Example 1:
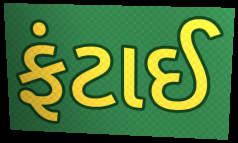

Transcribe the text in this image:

ફંટાઈ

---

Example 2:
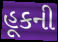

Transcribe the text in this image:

હૂકની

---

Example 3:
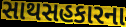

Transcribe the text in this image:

સાથસહકારના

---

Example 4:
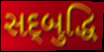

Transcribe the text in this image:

સદ્‌બુદ્ધિ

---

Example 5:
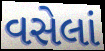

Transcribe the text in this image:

વસેલાં